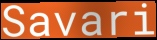
Savari